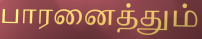
பாரனைத்தும்